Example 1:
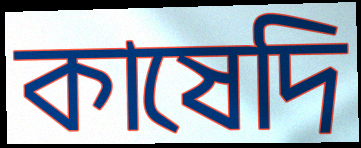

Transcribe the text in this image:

কাষেদি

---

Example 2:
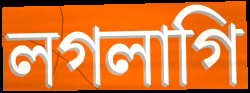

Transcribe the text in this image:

লগলাগি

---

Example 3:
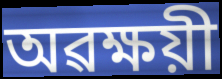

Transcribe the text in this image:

অৱক্ষয়ী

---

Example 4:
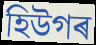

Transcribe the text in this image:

হিউগৰ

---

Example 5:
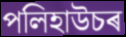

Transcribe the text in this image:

পলিহাউচৰ